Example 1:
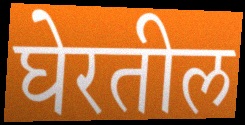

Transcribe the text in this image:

घेरतील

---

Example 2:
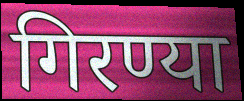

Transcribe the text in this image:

गिरण्या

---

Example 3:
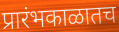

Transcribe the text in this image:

प्रारंभकाळातच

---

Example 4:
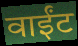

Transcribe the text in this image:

वाईंट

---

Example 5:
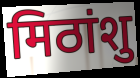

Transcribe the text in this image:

मिठांशु